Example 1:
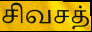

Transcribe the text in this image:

சிவசத்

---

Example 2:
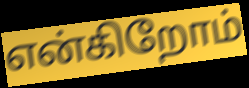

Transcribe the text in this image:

என்கிறோம்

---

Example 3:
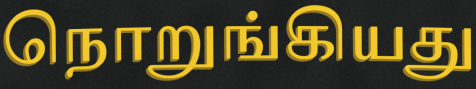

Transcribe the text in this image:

நொறுங்கியது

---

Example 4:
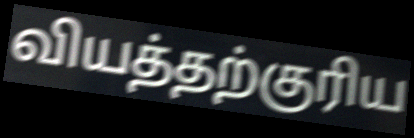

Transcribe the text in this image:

வியத்தற்குரிய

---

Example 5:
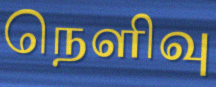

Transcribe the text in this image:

நெளிவு